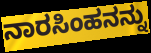
ನಾರಸಿಂಹನನ್ನು